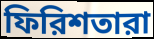
ফিরিশতারা